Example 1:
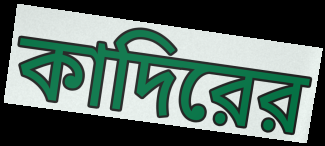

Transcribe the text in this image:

কাদিরের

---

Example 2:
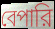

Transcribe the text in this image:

বেপারি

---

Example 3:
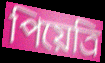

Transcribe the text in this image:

পিয়েত্রি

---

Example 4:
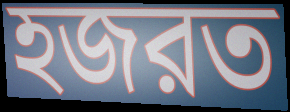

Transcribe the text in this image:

হজরত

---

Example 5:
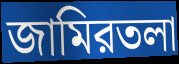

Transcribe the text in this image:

জামিরতলা